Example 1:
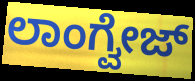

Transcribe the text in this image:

ಲಾಂಗ್ವೇಜ್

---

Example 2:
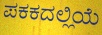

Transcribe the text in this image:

ಪಕಕದಲ್ಲಿಯೆ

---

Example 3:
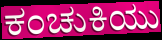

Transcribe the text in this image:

ಕಂಚುಕಿಯು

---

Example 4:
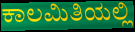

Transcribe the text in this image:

ಕಾಲಮಿತಿಯಲ್ಲಿ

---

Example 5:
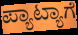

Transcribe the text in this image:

ಪ್ಯಾಟ್ಯಾಗೆ